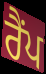
ਰੈਂਪ